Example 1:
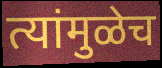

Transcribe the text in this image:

त्यांमुळेच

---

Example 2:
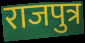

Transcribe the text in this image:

राजपुत्र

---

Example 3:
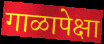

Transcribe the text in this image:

गाळापेक्षा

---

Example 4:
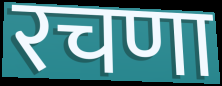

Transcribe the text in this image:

रचणा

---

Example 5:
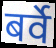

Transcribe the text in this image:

बर्वे